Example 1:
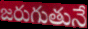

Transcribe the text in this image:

జరుగుతునే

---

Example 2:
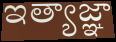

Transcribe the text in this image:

ఇత్యాజ్ఞా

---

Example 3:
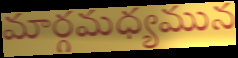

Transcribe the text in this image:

మార్గమధ్యమున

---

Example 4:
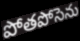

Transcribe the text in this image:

పోతపోసెను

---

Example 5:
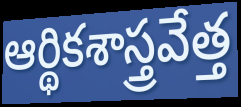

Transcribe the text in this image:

ఆర్థికశాస్త్రవేత్త